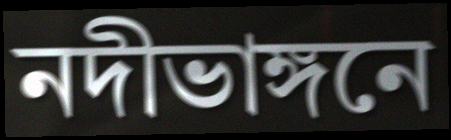
নদীভাঙ্গনে